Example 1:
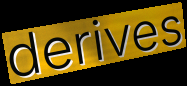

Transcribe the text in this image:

derives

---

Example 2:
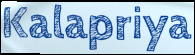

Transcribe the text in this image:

Kalapriya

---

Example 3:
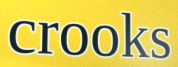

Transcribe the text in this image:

crooks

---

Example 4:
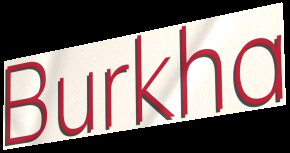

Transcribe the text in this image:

Burkha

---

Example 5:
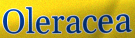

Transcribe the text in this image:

Oleracea